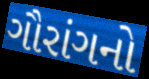
ગૌરાંગનો